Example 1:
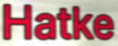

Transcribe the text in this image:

Hatke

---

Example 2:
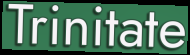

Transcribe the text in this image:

Trinitate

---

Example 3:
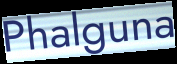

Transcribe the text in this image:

Phalguna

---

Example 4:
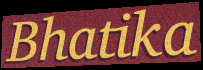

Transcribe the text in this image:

Bhatika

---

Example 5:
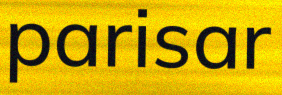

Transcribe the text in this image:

parisar